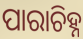
ପାରାଚିହ୍ନ